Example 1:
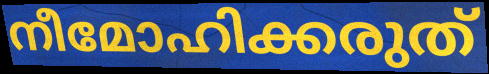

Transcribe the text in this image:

നീമോഹിക്കരുത്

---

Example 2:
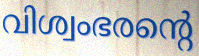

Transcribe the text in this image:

വിശ്വംഭരന്റെ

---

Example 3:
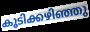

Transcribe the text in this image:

കൂടിക്കഴിഞ്ഞു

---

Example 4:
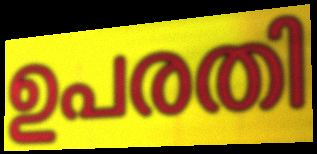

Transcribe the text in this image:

ഉപരതി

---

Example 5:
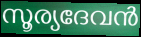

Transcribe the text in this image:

സൂര്യദേവൻ